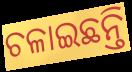
ଚଳାଇଛନ୍ତି